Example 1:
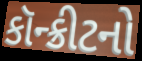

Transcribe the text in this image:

કૉન્ક્રીટનો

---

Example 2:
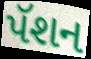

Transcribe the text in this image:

પૅશન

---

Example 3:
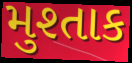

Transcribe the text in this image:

મુશ્તાક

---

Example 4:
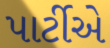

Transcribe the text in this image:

પાર્ટીએ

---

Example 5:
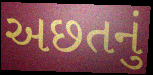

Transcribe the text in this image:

અછતનું